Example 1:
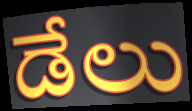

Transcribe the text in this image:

డేలు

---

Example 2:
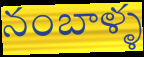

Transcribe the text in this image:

నంబాళ్ళ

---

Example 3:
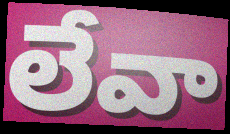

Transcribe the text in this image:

లేవా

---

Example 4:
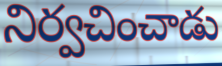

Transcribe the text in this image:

నిర్వచించాడు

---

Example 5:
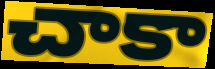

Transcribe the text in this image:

చాకా